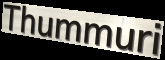
Thummuri